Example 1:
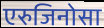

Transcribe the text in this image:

एरुजिनोसा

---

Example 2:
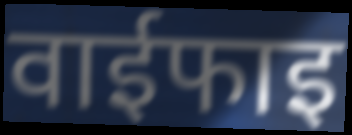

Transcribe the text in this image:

वाईफाइ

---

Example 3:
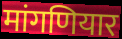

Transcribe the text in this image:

मांगणियार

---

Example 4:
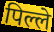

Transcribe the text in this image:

पिल्ले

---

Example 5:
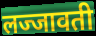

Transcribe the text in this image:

लज्जावती